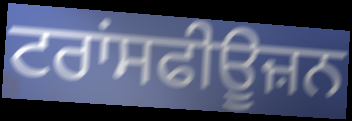
ਟਰਾਂਸਫੀਊਜ਼ਨ